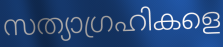
സത്യാഗ്രഹികളെ